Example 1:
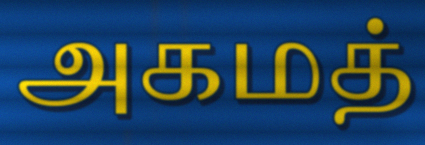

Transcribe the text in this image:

அகமத்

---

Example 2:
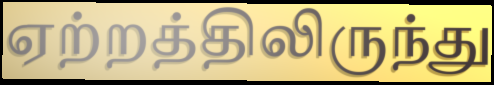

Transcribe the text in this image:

ஏற்றத்திலிருந்து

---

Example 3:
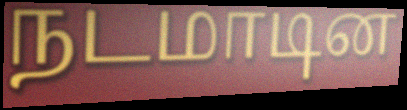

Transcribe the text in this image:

நடமாடின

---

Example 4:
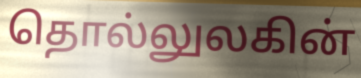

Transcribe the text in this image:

தொல்லுலகின்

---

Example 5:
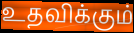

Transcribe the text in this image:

உதவிக்கும்